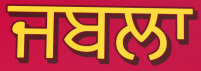
ਜਬਲਾ